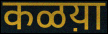
कळय़ा